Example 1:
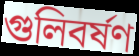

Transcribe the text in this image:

গুলিবৰ্ষণ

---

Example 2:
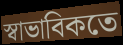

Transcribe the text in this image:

স্বাভাবিকতে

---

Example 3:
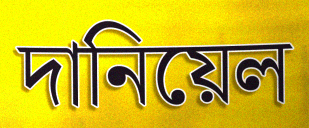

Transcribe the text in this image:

দানিয়েল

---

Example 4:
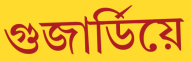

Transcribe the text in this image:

গুজাৰ্ডিয়ে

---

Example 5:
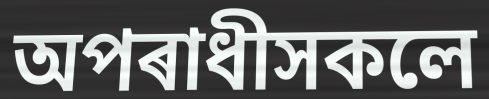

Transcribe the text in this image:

অপৰাধীসকলে